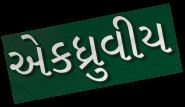
એકધ્રુવીય